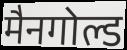
मैनगोल्ड